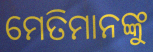
ମେତିମାନଙ୍କୁ